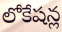
లోకేషన్ల